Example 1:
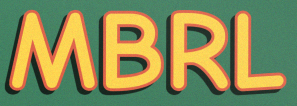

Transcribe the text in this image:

MBRL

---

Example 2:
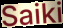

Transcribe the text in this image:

Saiki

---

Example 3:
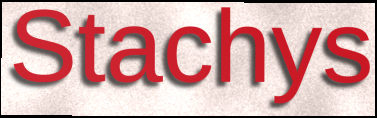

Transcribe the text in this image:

Stachys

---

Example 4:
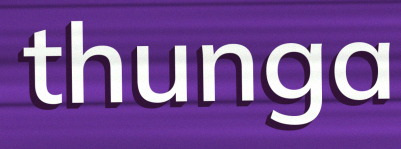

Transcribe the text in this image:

thunga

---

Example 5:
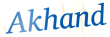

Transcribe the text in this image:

Akhand